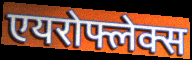
एयरोफ्लेक्स